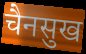
चैनसुख